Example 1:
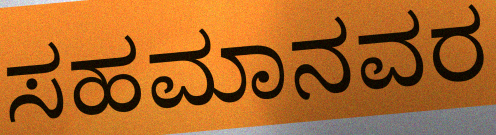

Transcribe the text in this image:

ಸಹಮಾನವರ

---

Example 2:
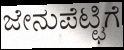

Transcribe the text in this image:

ಜೇನುಪೆಟ್ಟಿಗೆ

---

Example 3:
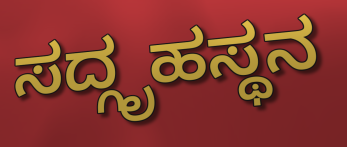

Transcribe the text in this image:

ಸದ್ಗೃಹಸ್ಥನ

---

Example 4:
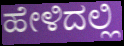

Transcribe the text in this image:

ಹೇಳಿದಲ್ಲಿ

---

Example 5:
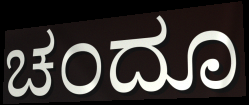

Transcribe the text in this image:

ಚಂದೂ